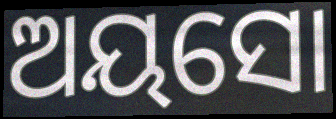
ଅୟସୋ